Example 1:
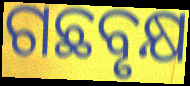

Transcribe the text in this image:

ଗଛବୃକ୍ଷ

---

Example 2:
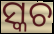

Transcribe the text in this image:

ସ୍କଚ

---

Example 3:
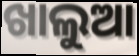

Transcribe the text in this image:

ଖାଲୁଆ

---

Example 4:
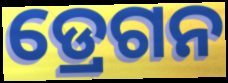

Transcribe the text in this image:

ଡ୍ରେଗନ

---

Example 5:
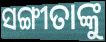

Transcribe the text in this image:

ସଙ୍ଗୀତାଙ୍କୁ